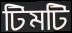
টিমটি